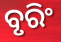
ବୃରିଂ